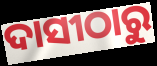
ଦାସୀଠାରୁ